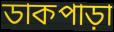
ডাকপাড়া